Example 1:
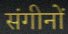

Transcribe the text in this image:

संगीनों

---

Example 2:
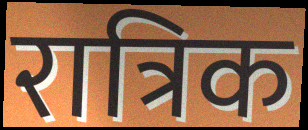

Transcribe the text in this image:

रात्रिक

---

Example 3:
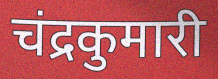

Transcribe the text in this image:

चंद्रकुमारी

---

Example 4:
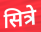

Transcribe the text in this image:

सित्रे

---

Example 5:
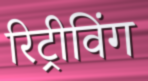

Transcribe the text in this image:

रिट्रीविंग